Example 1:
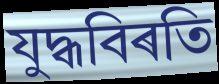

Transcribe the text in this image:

যুদ্ধবিৰতি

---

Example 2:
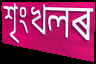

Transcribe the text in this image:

শৃংখলৰ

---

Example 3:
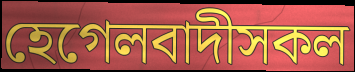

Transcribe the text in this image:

হেগেলবাদীসকল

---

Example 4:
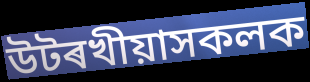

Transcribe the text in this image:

উটৰখীয়াসকলক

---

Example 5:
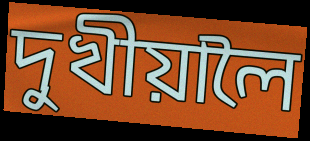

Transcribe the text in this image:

দুখীয়ালৈ